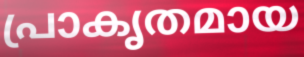
പ്രാകൃതമായ